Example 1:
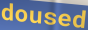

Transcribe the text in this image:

doused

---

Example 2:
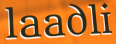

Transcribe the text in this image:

laadli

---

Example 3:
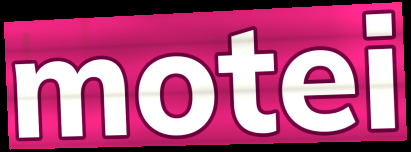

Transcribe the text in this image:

motei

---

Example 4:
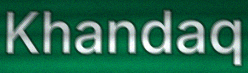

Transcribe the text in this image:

Khandaq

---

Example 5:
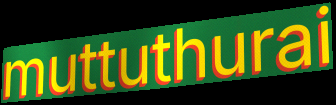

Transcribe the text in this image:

muttuthurai